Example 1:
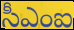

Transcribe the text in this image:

సీఎంఐ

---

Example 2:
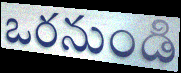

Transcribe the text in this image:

ఒరనుండి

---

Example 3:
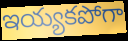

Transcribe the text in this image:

ఇయ్యకపోగా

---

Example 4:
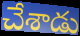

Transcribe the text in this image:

చేశాడు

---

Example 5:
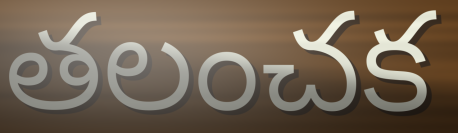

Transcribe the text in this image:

తలంచక